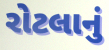
રોટલાનું